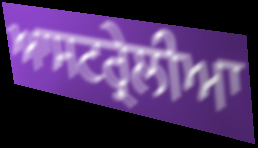
ਆਸਟਰ੍ਰੇਲੀਆ